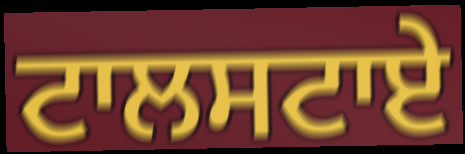
ਟਾਲਸਟਾਏ